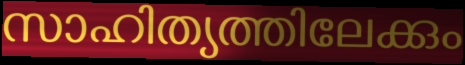
സാഹിത്യത്തിലേക്കും